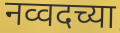
नव्वदच्या